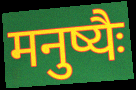
मनुष्यैः